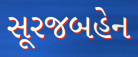
સૂરજબહેન